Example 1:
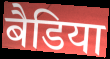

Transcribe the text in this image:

बैडिया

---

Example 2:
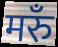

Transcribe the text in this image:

मरुँ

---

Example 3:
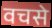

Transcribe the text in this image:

वचसे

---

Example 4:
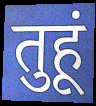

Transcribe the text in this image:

तुहूं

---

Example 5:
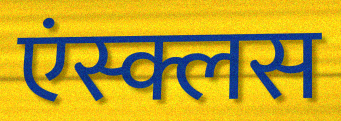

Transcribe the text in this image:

एंस्क्लस